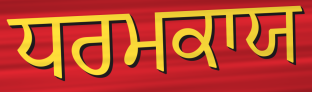
ਧਰਮਕਾਯ